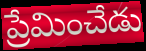
ప్రేమించేడు